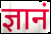
ज्ञानं